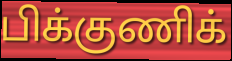
பிக்குணிக்